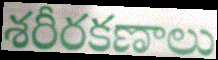
శరీరకణాలు